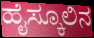
ಹೈಸ್ಕೂಲಿನ